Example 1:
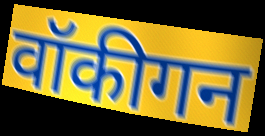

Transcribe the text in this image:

वॉकीगन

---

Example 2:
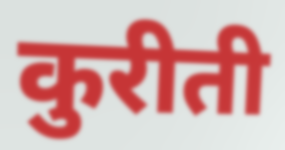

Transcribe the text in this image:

कुरीती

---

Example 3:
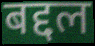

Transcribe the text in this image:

बद्दल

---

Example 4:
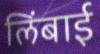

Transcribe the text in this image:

लिंबाई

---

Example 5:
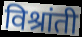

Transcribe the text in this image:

विश्रांती